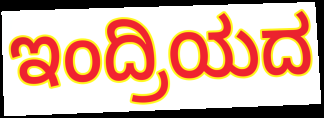
ಇಂದ್ರಿಯದ